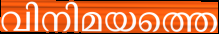
വിനിമയത്തെ